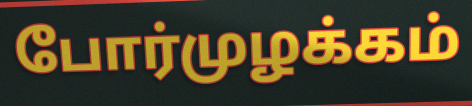
போர்முழக்கம்